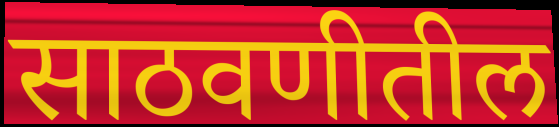
साठवणीतील